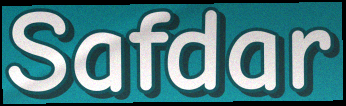
Safdar